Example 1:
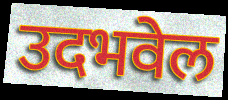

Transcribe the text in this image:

उदभवेल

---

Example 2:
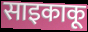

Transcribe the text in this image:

साइकाकू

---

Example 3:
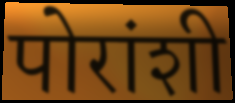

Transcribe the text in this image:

पोरांशी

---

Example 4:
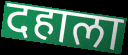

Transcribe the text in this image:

दहाला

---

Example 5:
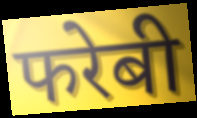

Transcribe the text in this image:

फरेबी